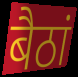
बैठां